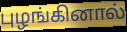
புழங்கினால்